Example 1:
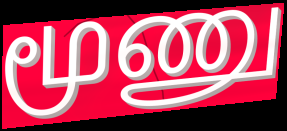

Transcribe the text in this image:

மூணு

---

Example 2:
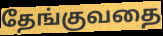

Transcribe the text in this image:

தேங்குவதை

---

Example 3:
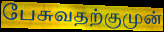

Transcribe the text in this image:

பேசுவதற்குமுன்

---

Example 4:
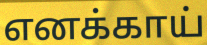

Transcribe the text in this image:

எனக்காய்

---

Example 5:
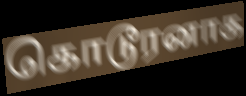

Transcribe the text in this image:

கொடூரனாக